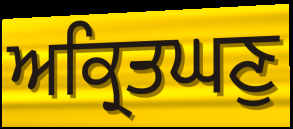
ਅਕ੍ਰਿਤਘਣੁ